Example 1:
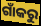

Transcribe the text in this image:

ଗାଁକରୁ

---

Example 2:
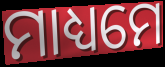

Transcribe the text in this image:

ମାଧ୍ୟମେ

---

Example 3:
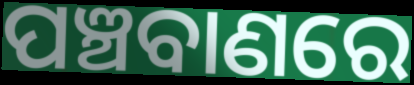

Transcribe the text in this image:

ପଞ୍ଚବାଣରେ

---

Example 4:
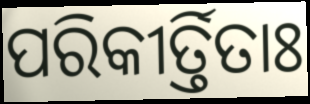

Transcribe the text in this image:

ପରିକୀର୍ତ୍ତିତାଃ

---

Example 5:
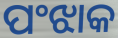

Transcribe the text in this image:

ପଂଝାକ